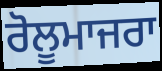
ਰੋਲੂਮਾਜਰਾ